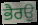
ਭੈਰਉ